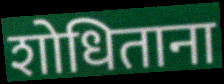
शोधिताना